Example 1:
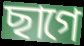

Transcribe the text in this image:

ছাগে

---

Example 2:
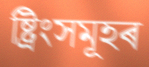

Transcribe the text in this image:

ষ্ট্ৰিংসমূহৰ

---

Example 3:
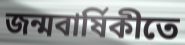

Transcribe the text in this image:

জন্মবাৰ্ষিকীতে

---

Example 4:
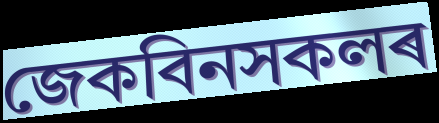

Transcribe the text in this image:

জেকবিনসকলৰ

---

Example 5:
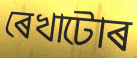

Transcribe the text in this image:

ৰেখাটোৰ